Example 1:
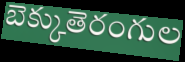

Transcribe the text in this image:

బెక్కుతెరంగుల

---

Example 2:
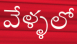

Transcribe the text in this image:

వేళ్ళలో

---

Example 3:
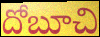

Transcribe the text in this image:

దోబూచి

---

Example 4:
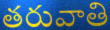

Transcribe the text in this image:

తరువాతి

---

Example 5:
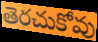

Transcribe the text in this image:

తెరచుకోవు